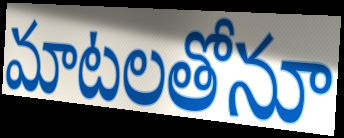
మాటలతోనూ